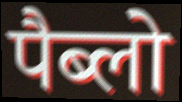
पैब्लो